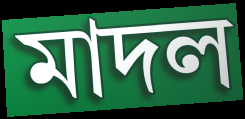
মাদল